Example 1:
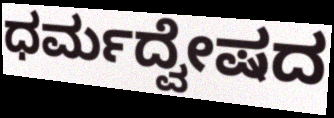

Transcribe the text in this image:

ಧರ್ಮದ್ವೇಷದ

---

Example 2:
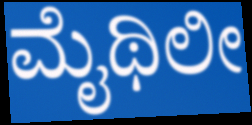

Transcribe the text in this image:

ಮೈಥಿಲೀ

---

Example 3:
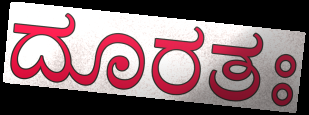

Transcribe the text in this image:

ದೂರತಃ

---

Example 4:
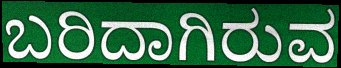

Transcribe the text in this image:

ಬರಿದಾಗಿರುವ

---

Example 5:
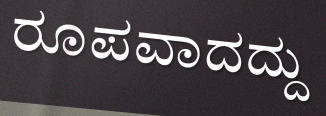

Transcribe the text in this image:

ರೂಪವಾದದ್ದು